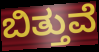
ಬಿತ್ತುವೆ